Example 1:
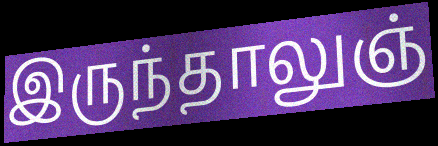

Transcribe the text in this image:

இருந்தாலுஞ்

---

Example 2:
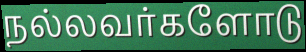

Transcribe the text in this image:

நல்லவர்களோடு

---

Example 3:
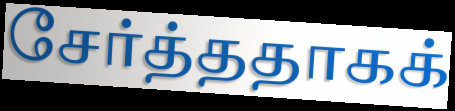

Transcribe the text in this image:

சேர்த்ததாகக்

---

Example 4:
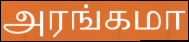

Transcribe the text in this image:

அரங்கமா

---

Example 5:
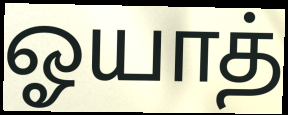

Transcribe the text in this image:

ஓயாத்